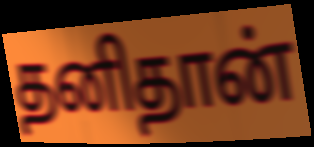
தனிதான்